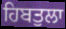
ਹਿਬਤੁਲਾ